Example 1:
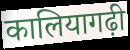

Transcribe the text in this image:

कालियागढ़ी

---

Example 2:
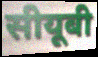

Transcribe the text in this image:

सीयूबी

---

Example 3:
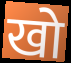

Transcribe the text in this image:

खो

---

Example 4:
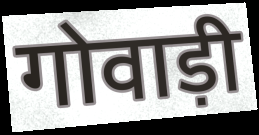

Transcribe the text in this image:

गोवाड़ी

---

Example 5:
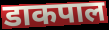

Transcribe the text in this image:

डाकपाल